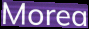
Morea